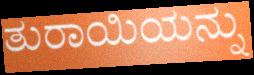
ತುರಾಯಿಯನ್ನು